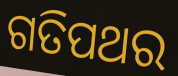
ଗତିପଥର